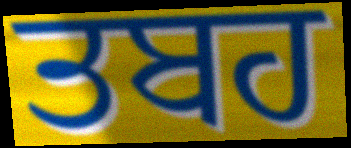
ਤਬਹ